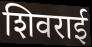
शिवराई